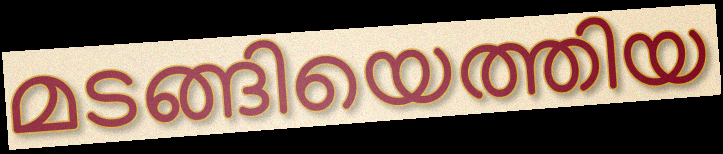
മടങ്ങിയെത്തിയ